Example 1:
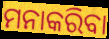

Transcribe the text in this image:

ମନାକରିବା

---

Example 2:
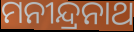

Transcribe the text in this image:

ମନୀନ୍ଦ୍ରନାଥ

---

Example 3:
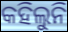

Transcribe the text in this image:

କହିଲୁନି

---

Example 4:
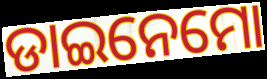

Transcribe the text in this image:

ଡାଇନେମୋ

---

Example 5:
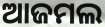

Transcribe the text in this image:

ଆଜମଲ